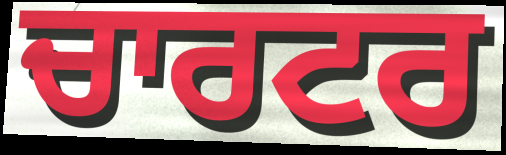
ਚਾਰਟਰ